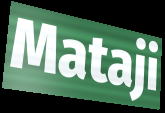
Mataji